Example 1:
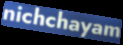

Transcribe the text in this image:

nichchayam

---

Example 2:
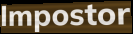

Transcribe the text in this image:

Impostor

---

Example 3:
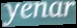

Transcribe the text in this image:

yenar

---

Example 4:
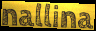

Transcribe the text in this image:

nallina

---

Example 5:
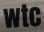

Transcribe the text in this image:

wtc